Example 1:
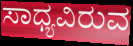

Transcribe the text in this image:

ಸಾಧ್ಯವಿರುವ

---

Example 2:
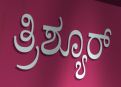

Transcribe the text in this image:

ತ್ರಿಶ್ಯೂರ್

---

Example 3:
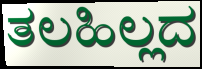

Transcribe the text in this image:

ತಲಹಿಲ್ಲದ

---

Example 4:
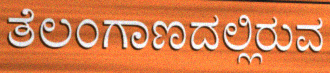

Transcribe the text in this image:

ತೆಲಂಗಾಣದಲ್ಲಿರುವ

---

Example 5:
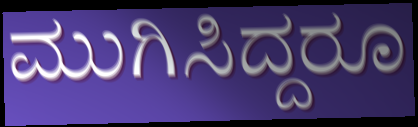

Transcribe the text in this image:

ಮುಗಿಸಿದ್ದರೂ